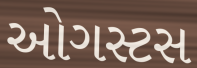
ઓગસ્ટસ